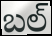
బల్